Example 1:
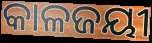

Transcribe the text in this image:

କାଳଜୟୀ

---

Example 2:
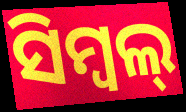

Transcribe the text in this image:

ସିମ୍ବଲ୍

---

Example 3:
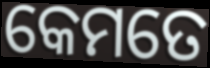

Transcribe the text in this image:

କେମତେ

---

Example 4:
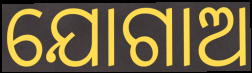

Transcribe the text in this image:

ଯୋଗାଅ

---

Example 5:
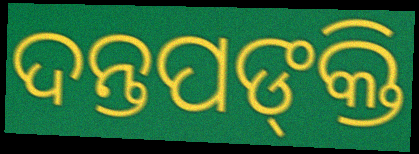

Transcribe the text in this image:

ଦନ୍ତପଙ୍‍କ୍ତି